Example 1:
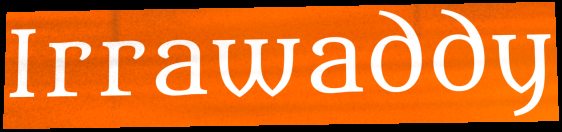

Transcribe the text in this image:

Irrawaddy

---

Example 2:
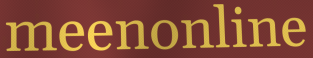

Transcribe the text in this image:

meenonline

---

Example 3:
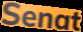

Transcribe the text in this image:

Senat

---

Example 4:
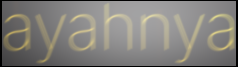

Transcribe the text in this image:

ayahnya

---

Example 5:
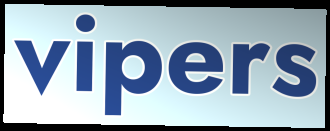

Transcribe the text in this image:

vipers